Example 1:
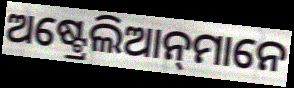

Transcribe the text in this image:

ଅଷ୍ଟ୍ରେଲିଆନ୍‌ମାନେ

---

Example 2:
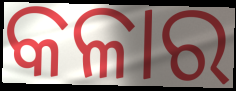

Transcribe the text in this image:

କଳାର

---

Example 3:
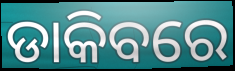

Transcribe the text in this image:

ଡାକିବରେ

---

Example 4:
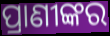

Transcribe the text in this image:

ପ୍ରାଣୀଙ୍କର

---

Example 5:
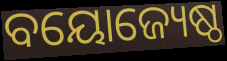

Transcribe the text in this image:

ବୟୋଜ୍ୟେଷ୍ଠ